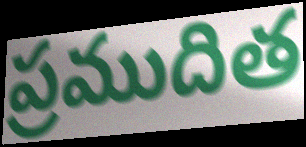
ప్రముదిత